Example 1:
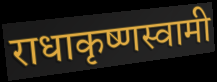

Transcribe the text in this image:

राधाकृष्णस्वामी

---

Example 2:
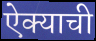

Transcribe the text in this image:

ऐक्याची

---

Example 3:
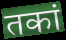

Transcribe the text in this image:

तकां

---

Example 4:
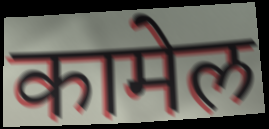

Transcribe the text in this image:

कामेल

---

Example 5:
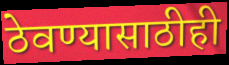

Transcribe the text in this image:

ठेवण्यासाठीही